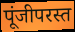
पूंजीपरस्त